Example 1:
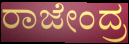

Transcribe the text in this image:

ರಾಜೇಂದ್ರ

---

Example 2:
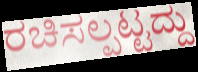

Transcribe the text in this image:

ರಚಿಸಲ್ಪಟ್ಟದ್ದು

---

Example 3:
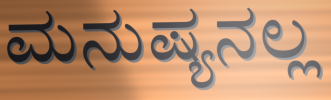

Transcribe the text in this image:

ಮನುಷ್ಯನಲ್ಲ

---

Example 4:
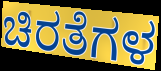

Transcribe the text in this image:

ಚಿರತೆಗಳ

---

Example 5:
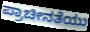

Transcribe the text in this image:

ಪ್ರಾಚೀನತೆಯು